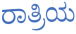
ರಾತ್ರಿಯ